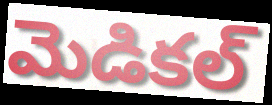
మెడికల్